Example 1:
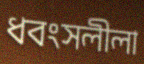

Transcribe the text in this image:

ধবংসলীলা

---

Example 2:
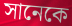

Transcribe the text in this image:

সানেকে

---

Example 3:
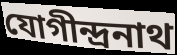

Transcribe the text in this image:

যোগীন্দ্রনাথ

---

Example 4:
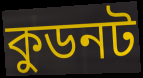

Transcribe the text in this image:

কুডনট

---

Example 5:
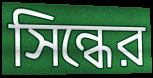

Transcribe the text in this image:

সিন্ধের